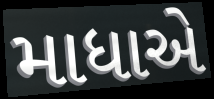
માધાએ